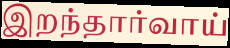
இறந்தார்வாய்